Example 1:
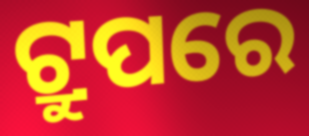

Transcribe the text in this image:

ଟ୍ରୁପରେ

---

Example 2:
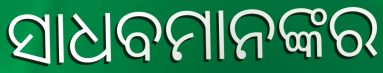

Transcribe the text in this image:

ସାଧବମାନଙ୍କର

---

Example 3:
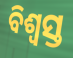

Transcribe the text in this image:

ବିଶ୍ୱସ୍ତ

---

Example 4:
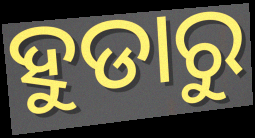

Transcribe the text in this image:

ହୁଡାରୁ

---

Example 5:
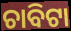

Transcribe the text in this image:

ଚାବିଟା